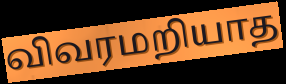
விவரமறியாத